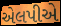
એલપીએ